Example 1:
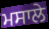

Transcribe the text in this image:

ਮਸਾਲੇ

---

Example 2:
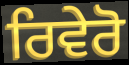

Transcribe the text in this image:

ਰਿਵੇਰੋ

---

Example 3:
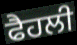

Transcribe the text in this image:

ਫੈਹਲੀ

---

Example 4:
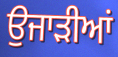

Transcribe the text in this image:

ਉਜਾੜੀਆਂ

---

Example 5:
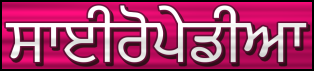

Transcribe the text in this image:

ਸਾਈਰੋਪੇਡੀਆ